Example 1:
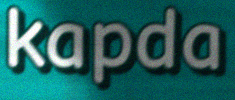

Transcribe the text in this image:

kapda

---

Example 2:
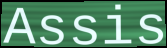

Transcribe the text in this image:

Assis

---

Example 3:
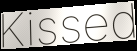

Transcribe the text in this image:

Kissed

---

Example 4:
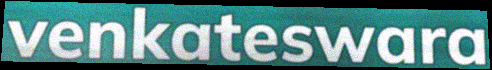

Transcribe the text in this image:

venkateswara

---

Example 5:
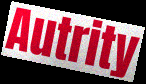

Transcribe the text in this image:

Autrity